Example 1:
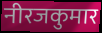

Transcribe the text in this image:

नीरजकुमार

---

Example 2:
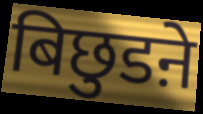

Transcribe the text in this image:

बिछुडऩे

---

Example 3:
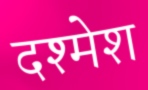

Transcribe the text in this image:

दश्मेश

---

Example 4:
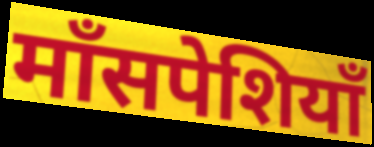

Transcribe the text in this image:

माँसपेशियाँ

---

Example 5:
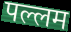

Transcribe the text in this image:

पल्लम